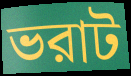
ভরাট